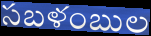
సబళంబుల